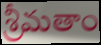
శ్రీమతాం